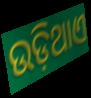
ଉଡ଼ିଥାଏ